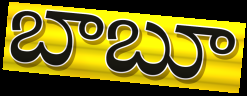
బాబూ